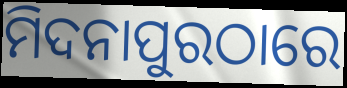
ମିଦନାପୁରଠାରେ